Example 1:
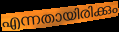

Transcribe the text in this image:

എന്നതായിരിക്കും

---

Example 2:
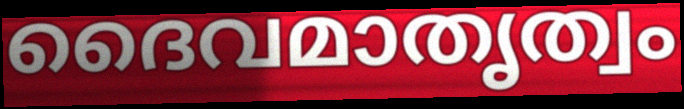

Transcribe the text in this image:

ദൈവമാതൃത്വം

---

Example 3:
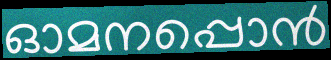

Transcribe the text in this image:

ഓമനപ്പൊൻ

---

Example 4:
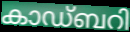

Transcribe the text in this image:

കാഡ്ബറി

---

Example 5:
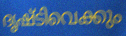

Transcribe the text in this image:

ദൃഷ്ടിവെക്കും